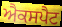
ਐਕਸਪੈਟ